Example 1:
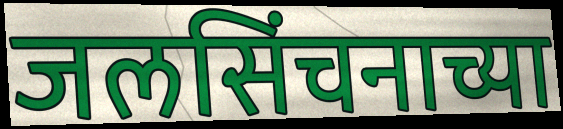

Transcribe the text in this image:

जलसिंचनाच्या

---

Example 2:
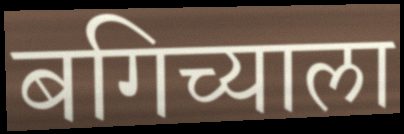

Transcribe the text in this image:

बगिच्याला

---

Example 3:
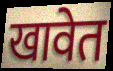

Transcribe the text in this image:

खावेत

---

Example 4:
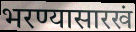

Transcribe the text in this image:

भरण्यासारखं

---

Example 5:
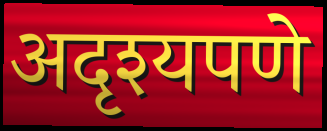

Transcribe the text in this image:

अदृश्यपणे